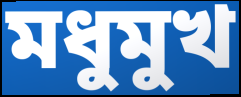
মধুমুখ